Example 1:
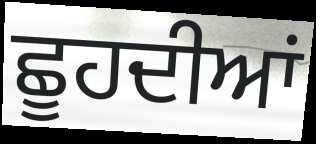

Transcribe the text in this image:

ਛੂਹਦੀਆਂ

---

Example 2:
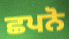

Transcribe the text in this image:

ਛਪਨੋ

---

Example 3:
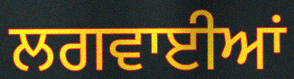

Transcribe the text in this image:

ਲਗਵਾਈਆਂ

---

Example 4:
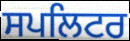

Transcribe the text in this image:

ਸਪਲਿਟਰ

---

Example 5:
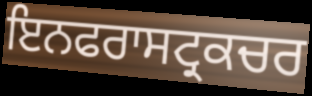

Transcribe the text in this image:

ਇਨਫਰਾਸਟ੍ਰਕਚਰ